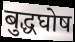
बुद्धघोष